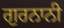
ਗੁਰਨਾਨੀ